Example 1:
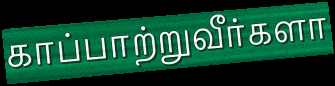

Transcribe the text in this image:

காப்பாற்றுவீர்களா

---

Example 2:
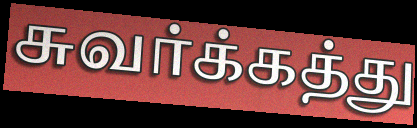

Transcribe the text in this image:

சுவர்க்கத்து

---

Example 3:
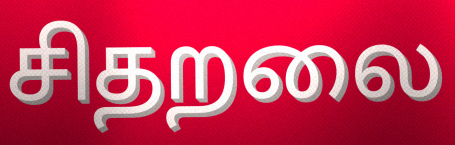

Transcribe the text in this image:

சிதறலை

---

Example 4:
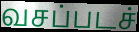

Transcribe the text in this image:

வசப்படச்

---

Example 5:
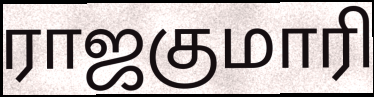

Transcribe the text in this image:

ராஜகுமாரி